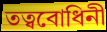
তত্ববোধিনী